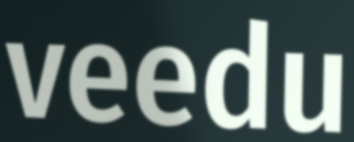
veedu